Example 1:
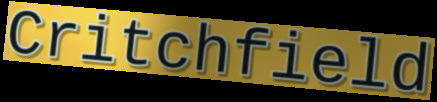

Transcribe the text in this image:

Critchfield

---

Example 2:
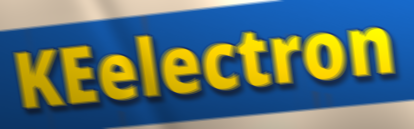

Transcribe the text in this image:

KEelectron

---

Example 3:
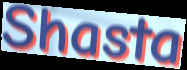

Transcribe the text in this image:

Shasta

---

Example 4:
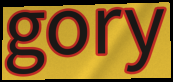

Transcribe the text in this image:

gory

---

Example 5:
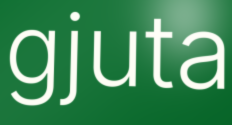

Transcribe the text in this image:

gjuta